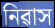
নিৱাস